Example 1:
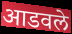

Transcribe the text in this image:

आडवले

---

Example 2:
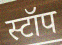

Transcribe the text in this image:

स्टॉप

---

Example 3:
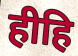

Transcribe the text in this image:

हीहि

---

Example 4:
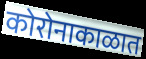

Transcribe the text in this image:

कोरोनाकाळात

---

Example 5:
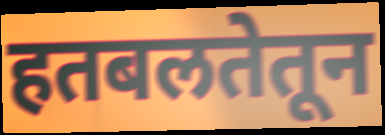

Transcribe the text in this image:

हतबलतेतून